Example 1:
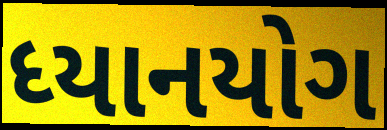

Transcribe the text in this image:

ધ્યાનયોગ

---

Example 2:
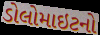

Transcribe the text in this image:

ડોલોમાઇટનો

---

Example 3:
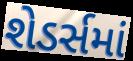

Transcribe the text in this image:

શેડર્સમાં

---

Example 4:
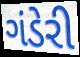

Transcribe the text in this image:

ગંડેરી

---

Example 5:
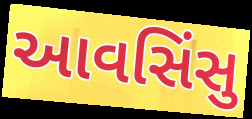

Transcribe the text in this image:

આવસિંસુ